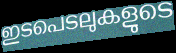
ഇടപെടലുകളുടെ